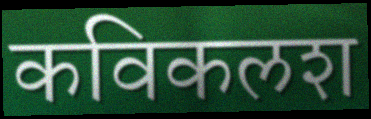
कविकलश